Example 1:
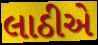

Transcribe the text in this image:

લાઠીએ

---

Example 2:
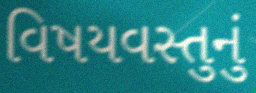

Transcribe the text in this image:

વિષયવસ્તુનું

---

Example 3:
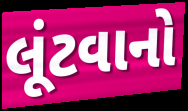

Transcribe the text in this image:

લૂંટવાનો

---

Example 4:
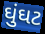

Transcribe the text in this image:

ઘુંઘટ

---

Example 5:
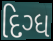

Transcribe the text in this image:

દિગ્ધ